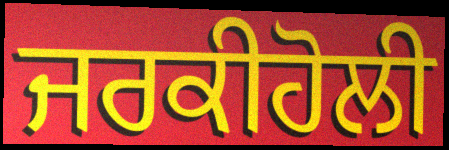
ਜਰਕੀਹੋਲੀ